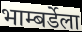
भाम्बर्डेला